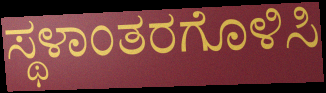
ಸ್ಥಳಾಂತರಗೊಳಿಸಿ